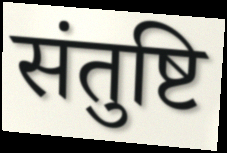
संतुष्टि